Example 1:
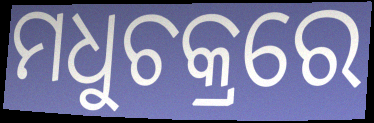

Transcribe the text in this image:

ମଧୁଚକ୍ରରେ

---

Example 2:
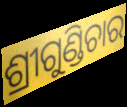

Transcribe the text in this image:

ଶ୍ରୀଗୁଣ୍ଡିଚାର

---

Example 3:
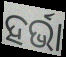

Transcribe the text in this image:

ହର୍ଭା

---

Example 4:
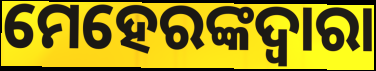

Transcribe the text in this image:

ମେହେରଙ୍କଦ୍ଵାରା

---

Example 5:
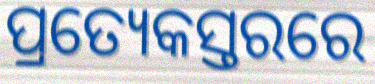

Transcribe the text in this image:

ପ୍ରତ୍ୟେକସ୍ତରରେ